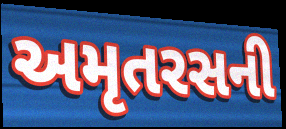
અમૃતરસની